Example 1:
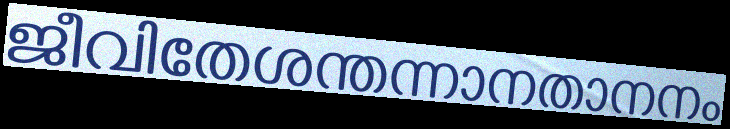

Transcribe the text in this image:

ജീവിതേശന്തന്നാനതാനനം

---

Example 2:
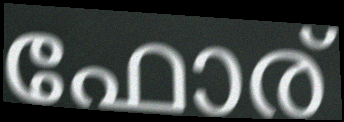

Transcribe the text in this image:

ഫോര്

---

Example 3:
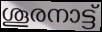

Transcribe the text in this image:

ശൂരനാട്ട്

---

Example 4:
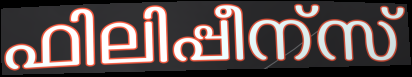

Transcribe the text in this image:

ഫിലിപ്പീന്സ്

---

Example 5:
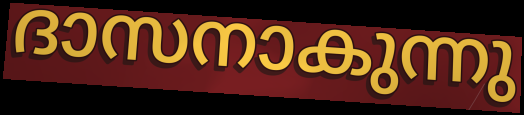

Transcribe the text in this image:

ദാസനാകുന്നു